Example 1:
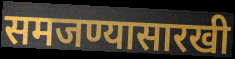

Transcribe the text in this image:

समजण्यासारखी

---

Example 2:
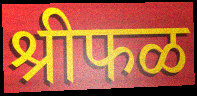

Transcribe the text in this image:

श्रीफळ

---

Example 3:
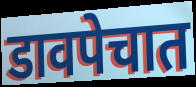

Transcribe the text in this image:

डावपेचात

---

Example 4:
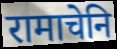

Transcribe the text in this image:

रामाचेनि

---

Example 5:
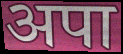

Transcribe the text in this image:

अपा